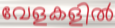
വേളകളിൽ